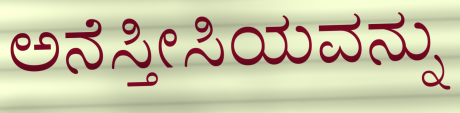
ಅನೆಸ್ತೀಸಿಯವನ್ನು